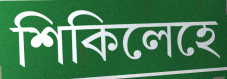
শিকিলেহে